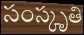
సంస్కృతి